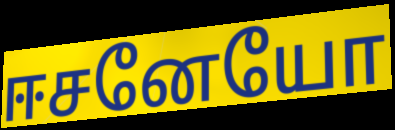
ஈசனேயோ